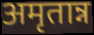
अमृतान्न